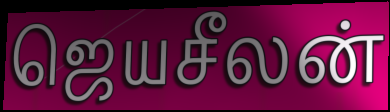
ஜெயசீலன்